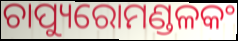
ଚାପ୍ୟୁରୋମଣ୍ଡଳକଂ